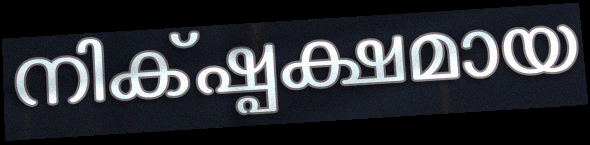
നിക്ഷ്പക്ഷമായ